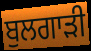
ਬੁਲਗਾੜੀ